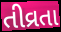
તીવ્રતા